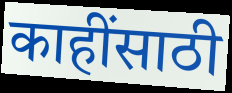
काहींसाठी